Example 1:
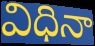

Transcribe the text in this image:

విధినా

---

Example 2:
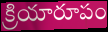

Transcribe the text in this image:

క్రియారూపం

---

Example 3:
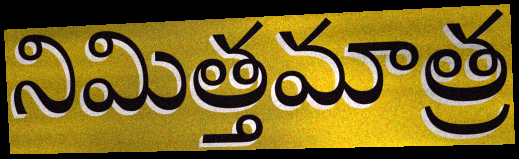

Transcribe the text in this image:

నిమిత్తమాత్ర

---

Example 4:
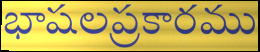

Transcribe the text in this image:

భాషలప్రకారము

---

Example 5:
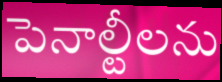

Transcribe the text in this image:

పెనాల్టీలను